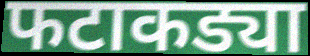
फटाकड्या